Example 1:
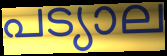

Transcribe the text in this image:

പട്യാല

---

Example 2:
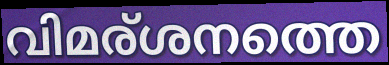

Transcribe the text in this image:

വിമര്ശനത്തെ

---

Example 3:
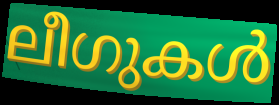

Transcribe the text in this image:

ലീഗുകൾ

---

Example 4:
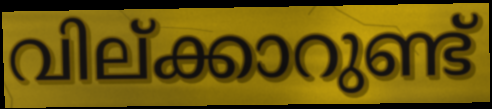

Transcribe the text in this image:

വില്ക്കാറുണ്ട്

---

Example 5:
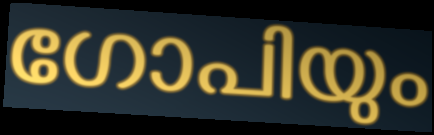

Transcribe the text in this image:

ഗോപിയും